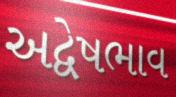
અદ્વેષભાવ